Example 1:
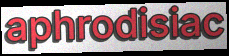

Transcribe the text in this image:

aphrodisiac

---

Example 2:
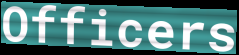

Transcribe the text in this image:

Officers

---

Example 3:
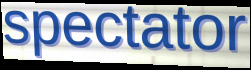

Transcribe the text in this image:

spectator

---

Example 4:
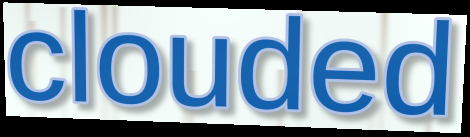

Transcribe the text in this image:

clouded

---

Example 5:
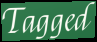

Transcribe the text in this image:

Tagged